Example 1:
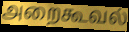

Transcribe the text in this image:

அறைகூவல்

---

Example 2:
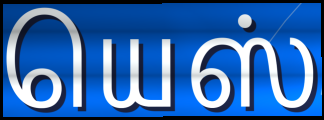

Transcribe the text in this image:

யெஸ்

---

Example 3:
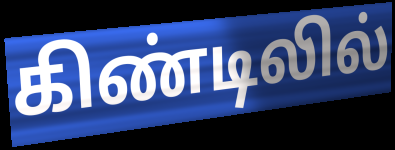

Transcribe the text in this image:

கிண்டிலில்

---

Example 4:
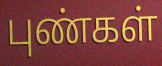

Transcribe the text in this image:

புண்கள்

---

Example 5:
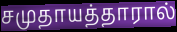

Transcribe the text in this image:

சமுதாயத்தாரால்